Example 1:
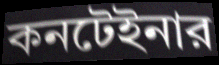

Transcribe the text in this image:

কনটেইনার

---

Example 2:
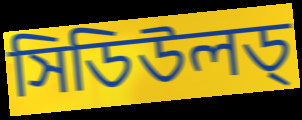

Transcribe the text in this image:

সিডিউলড্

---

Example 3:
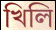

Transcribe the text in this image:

খিলি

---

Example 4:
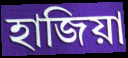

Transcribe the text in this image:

হাজিয়া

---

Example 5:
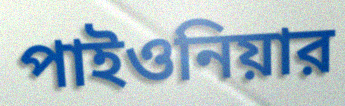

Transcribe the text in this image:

পাইওনিয়ার